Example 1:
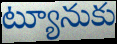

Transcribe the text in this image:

ట్యూనుకు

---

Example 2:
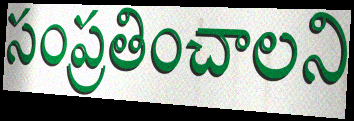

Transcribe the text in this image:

సంప్రతించాలని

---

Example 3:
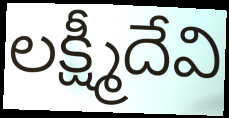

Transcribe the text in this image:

లక్ష్మీదేవి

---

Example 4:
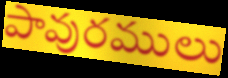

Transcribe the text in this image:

పావురములు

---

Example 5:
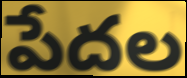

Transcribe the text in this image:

పేదల